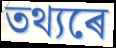
তথ্যৰে